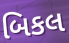
બિકલ